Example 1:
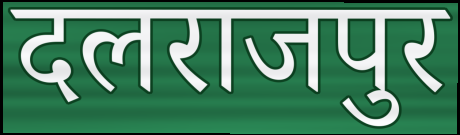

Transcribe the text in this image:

दलराजपुर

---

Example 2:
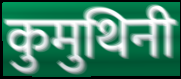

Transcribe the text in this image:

कुमुथिनी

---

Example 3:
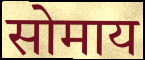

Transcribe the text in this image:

सोमाय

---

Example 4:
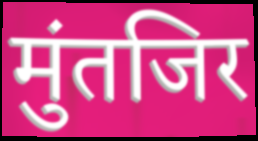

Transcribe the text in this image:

मुंतजिर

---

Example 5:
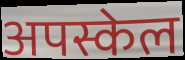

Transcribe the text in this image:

अपस्केल